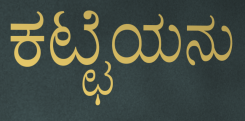
ಕಟ್ಟೆಯನು